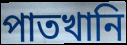
পাতখানি